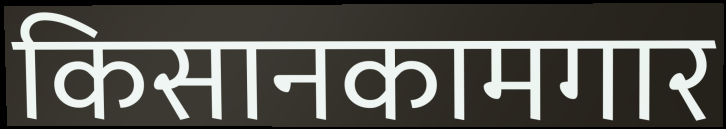
किसानकामगार